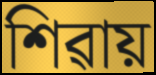
শিৱায়